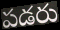
పడరు